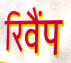
रिवैंप